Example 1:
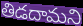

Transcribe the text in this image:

తిడదామని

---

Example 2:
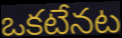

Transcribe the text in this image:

ఒకటేనట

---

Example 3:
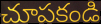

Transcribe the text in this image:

చూపకండి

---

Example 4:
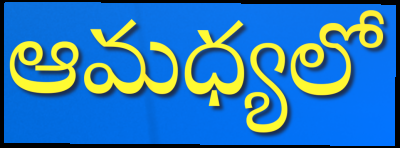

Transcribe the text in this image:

ఆమధ్యలో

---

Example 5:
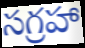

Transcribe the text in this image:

సగ్రహా